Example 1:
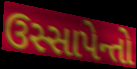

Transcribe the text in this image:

ઉસ્સાપેન્તો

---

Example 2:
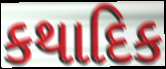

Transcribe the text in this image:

કથાદિક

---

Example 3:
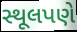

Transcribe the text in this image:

સ્થૂલપણે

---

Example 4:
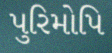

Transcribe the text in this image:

પુરિમોપિ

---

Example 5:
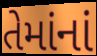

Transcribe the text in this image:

તેમાંનાં